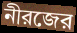
নীরজের